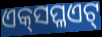
ଏକ୍‍ସପ୍ଳଏଟ୍